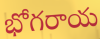
భోగరాయ